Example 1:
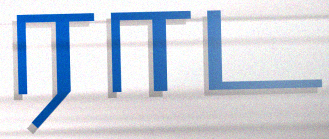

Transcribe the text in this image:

ராட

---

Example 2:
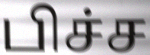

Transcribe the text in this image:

பிச்ச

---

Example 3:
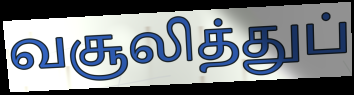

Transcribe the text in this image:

வசூலித்துப்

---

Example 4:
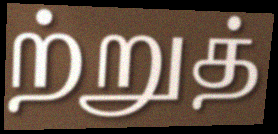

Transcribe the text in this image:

ற்றுத்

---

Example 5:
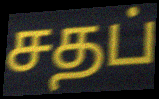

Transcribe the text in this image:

சதப்